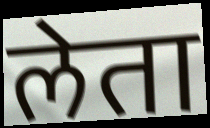
लेता